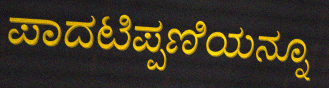
ಪಾದಟಿಪ್ಪಣಿಯನ್ನೂ